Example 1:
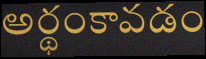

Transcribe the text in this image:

అర్థంకావడం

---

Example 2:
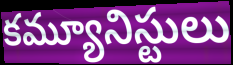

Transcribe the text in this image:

కమ్యూనిస్టులు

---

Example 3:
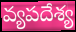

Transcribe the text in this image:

వ్యపదేశ్య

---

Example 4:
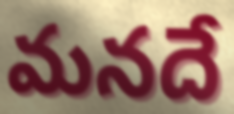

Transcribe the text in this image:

మనదే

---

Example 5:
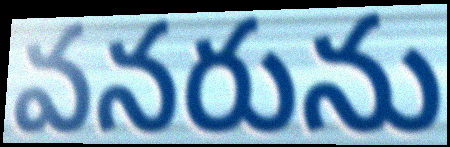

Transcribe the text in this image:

వనరును